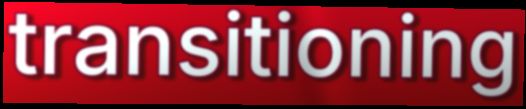
transitioning